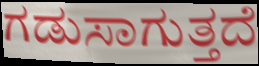
ಗಡುಸಾಗುತ್ತದೆ